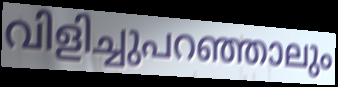
വിളിച്ചുപറഞ്ഞാലും